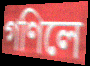
গণিলে